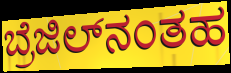
ಬ್ರೆಜಿಲ್‌ನಂತಹ